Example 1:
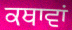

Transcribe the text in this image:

ਕਥਾਵਾਂ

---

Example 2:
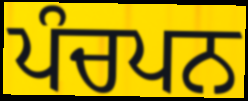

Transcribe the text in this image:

ਪੰਚਪਨ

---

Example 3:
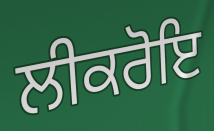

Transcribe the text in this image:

ਲੀਕਰੋਇ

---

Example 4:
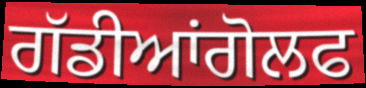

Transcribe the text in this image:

ਗੱਡੀਆਂਗੋਲਫ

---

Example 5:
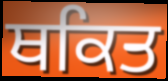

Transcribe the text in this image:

ਥਕਿਤ